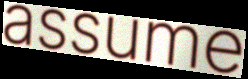
assume